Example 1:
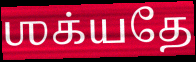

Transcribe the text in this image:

ஶக்யதே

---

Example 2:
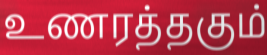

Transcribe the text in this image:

உணரத்தகும்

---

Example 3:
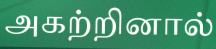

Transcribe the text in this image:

அகற்றினால்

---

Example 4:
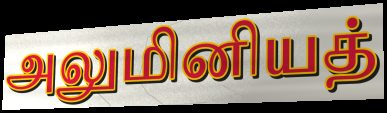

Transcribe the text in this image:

அலுமினியத்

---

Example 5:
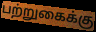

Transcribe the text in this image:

பற்றுகைக்கு